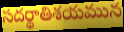
సదర్థాతిశయమున